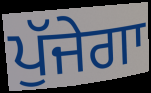
ਪੁੱਜੇਗਾ